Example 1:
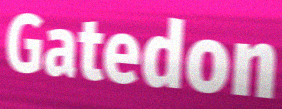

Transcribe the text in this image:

Gatedon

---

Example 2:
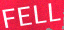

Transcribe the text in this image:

FELL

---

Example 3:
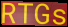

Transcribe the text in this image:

RTGs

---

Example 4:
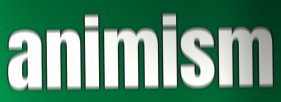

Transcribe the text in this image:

animism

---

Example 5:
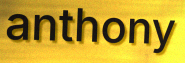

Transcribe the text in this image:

anthony